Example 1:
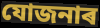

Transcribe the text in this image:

যোজনাৰ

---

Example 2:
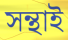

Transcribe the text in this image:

সন্থাই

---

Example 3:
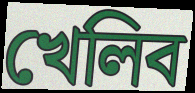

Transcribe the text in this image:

খেলিব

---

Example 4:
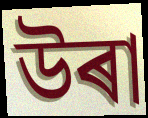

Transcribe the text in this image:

উৰা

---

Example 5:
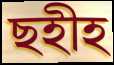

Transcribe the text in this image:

ছহীহ